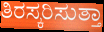
ತಿರಸ್ಕರಿಸುತ್ತಾ